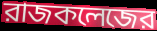
রাজকলেজের